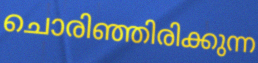
ചൊരിഞ്ഞിരിക്കുന്ന